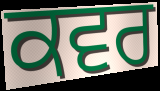
ਕਵਰ